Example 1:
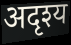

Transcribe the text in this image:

अदृश्य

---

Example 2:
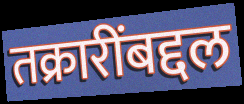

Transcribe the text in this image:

तक्रारींबद्दल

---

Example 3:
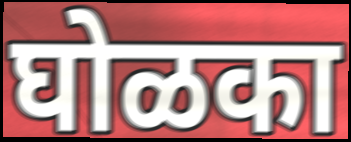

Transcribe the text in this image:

घोळका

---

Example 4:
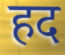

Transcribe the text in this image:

हद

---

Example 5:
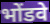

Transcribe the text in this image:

भोंडवे